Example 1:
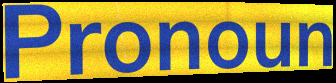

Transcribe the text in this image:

Pronoun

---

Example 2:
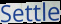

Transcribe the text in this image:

Settle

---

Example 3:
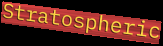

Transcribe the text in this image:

Stratospheric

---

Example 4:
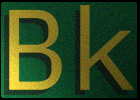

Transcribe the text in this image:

Bk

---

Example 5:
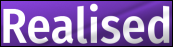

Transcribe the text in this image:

Realised